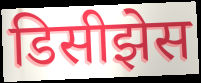
डिसीझेस